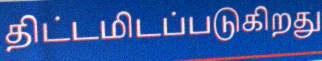
திட்டமிடப்படுகிறது